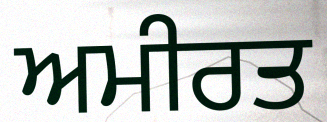
ਅਮੀਰਤ